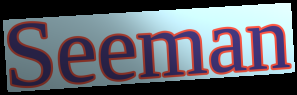
Seeman